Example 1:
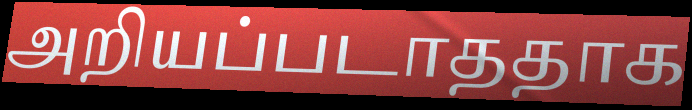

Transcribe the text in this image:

அறியப்படாததாக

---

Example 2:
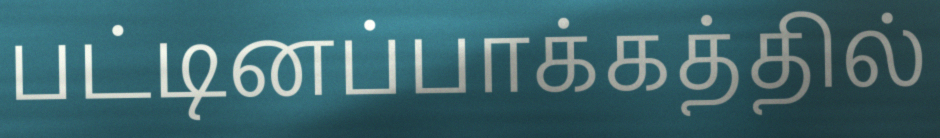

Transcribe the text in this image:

பட்டினப்பாக்கத்தில்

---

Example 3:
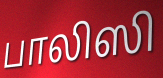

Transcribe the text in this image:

பாலிஸி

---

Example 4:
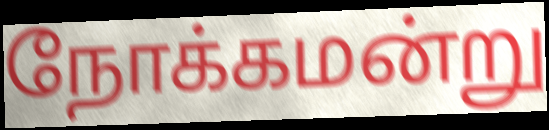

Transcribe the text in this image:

நோக்கமன்று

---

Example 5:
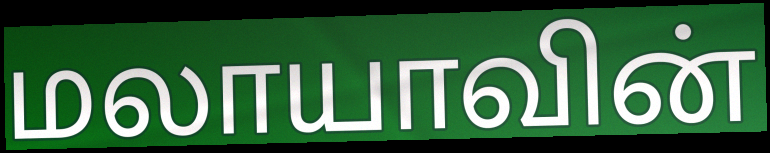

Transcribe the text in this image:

மலாயாவின்